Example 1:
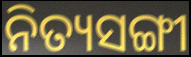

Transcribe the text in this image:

ନିତ୍ୟସଙ୍ଗୀ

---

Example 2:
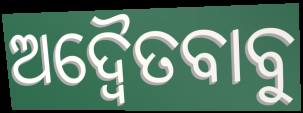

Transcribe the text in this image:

ଅଦ୍ୱୈତବାବୁ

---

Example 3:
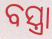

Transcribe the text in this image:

ବସ୍ତ୍ରା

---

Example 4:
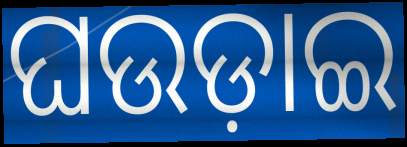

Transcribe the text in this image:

ଘଉଡ଼ାଇ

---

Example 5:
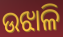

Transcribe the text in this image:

ଉଝାଳି